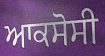
ਆਕਸੋਸੀ